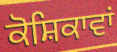
ਕੋਸ਼ਿਕਾਵਾਂ